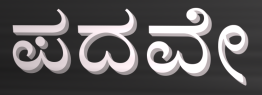
ಪದವೇ